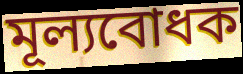
মূল্যবোধক